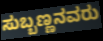
ಸುಬ್ಬಣ್ಣನವರು